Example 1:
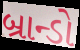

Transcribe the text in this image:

બ્રાન્ડો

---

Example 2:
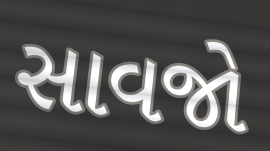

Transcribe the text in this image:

સાવજો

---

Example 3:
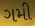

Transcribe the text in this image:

ગમી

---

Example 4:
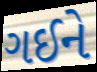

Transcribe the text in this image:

ગઈને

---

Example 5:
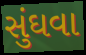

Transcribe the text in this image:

સુંઘવા